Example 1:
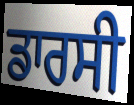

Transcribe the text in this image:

ਡਾਰਸੀ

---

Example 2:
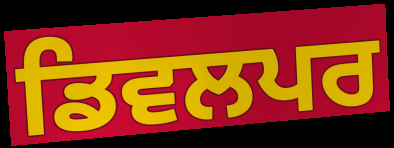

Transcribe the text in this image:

ਡਿਵਲਪਰ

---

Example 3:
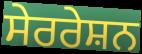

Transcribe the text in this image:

ਸੇਰਰੇਸ਼ਨ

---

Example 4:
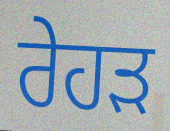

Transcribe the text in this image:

ਰੇਹੜ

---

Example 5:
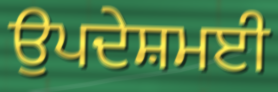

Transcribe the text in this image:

ਉਪਦੇਸ਼ਮਈ